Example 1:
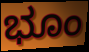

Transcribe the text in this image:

ಭೂಂ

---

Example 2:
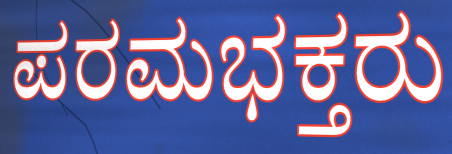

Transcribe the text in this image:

ಪರಮಭಕ್ತರು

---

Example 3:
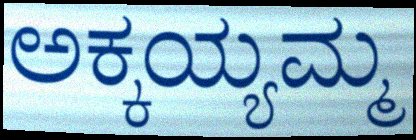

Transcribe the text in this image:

ಅಕ್ಕಯ್ಯಮ್ಮ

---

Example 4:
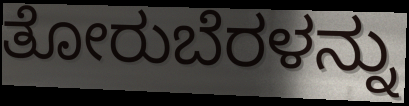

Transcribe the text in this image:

ತೋರುಬೆರಳನ್ನು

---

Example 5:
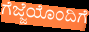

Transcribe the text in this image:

ಗೆಜ್ಜೆಯೊಂದಿಗೆ